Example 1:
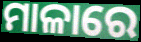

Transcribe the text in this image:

ମାଳାରେ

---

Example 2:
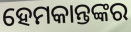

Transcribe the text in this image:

ହେମକାନ୍ତଙ୍କର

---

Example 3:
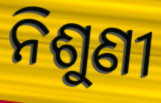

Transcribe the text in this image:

ନିଶୁଣୀ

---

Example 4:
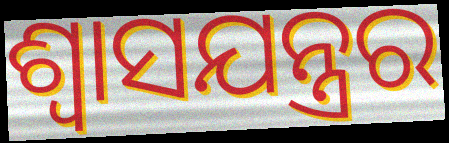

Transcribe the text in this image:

ଶ୍ୱାସଯନ୍ତ୍ରର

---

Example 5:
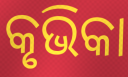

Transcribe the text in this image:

କୃଭିକା